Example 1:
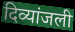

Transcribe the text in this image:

दिव्यांजली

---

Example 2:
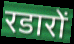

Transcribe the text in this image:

रडारों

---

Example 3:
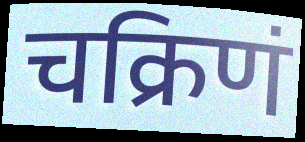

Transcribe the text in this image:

चक्रिणं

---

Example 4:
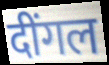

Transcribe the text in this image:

दींगल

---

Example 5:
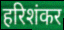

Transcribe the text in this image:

हरिशंकर